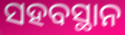
ସହବସ୍ଥାନ